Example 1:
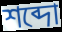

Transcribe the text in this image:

শব্দো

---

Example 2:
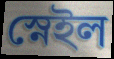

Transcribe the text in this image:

স্নেইল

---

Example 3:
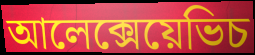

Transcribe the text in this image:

আলেক্সেয়েভিচ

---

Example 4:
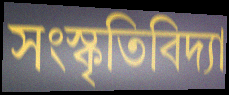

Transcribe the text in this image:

সংস্কৃতিবিদ্য়া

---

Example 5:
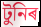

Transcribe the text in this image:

টুনিৰ